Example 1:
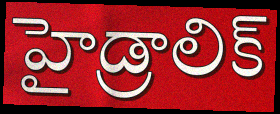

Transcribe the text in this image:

హైడ్రాలిక్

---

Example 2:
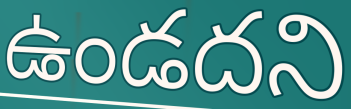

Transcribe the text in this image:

ఉండదని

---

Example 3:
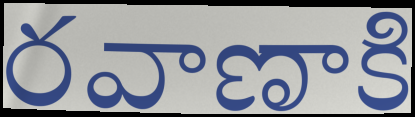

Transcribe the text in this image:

రవాణాకి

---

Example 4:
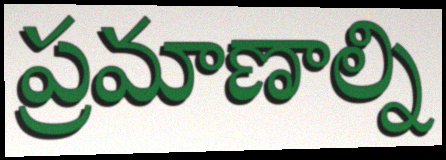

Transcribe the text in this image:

ప్రమాణాల్ని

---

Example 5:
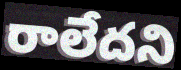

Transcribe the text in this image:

రాలేదని